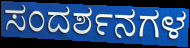
ಸಂದರ್ಶನಗಳ